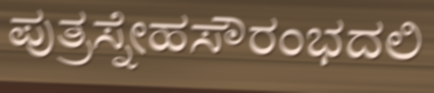
ಪುತ್ರಸ್ನೇಹಸೌರಂಭದಲಿ